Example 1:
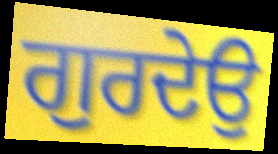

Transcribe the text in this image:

ਗੁਰਦੇਉ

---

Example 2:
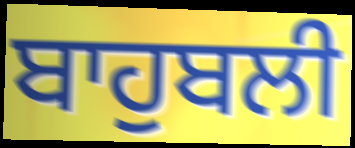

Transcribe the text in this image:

ਬਾਹੁਬਲੀ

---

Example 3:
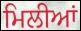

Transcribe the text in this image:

ਮਿਲੀਆਂ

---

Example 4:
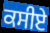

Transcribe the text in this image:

ਕਸੀਏ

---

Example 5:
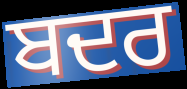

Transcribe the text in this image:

ਬਦਰ